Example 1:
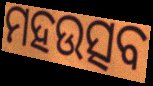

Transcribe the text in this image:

ମହଉତ୍ସବ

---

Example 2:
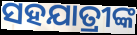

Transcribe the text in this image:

ସହଯାତ୍ରୀଙ୍କ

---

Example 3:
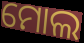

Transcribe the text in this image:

ମୋଲ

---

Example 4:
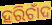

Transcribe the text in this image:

ହରିଚାଁଦ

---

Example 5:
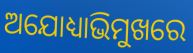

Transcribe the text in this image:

ଅଯୋଧ୍ୟାଭିମୁଖରେ